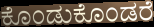
ಕೊಂಡುಕೊಂಡರೆ